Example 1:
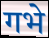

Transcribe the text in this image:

गभे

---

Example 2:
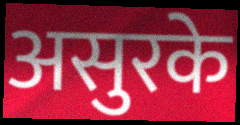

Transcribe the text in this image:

असुरके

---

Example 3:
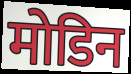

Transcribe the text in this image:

मोडिन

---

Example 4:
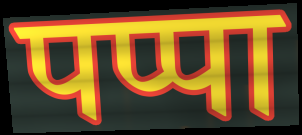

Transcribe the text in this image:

पप्‍पा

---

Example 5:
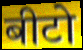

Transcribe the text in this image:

बीटो